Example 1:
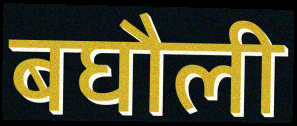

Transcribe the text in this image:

बघौली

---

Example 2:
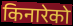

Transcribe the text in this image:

किनारेको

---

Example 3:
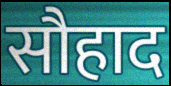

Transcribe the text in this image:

सौहाद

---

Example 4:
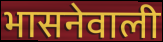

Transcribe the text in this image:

भासनेवाली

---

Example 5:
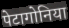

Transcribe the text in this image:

पेटागोनिया